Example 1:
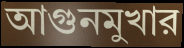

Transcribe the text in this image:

আগুনমুখার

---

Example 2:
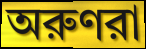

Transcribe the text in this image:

অরুণরা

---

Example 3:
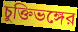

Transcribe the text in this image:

চুক্তিভঙ্গের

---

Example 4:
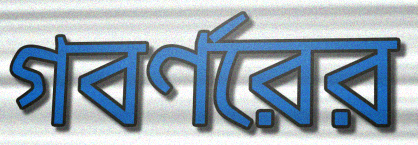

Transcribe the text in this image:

গবর্ণরের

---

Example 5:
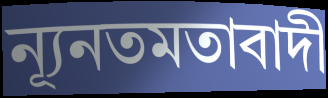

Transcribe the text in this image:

ন্যূনতমতাবাদী